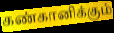
கண்கானிக்கும்